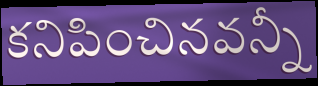
కనిపించినవన్నీ